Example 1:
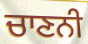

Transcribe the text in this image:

ਚਾਣਨੀ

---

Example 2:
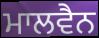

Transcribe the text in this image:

ਮਾਲਵੈਨ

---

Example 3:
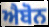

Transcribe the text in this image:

ਐਬੋਨ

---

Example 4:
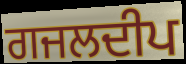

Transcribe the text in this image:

ਗਜਲਦੀਪ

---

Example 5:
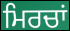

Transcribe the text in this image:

ਮਿਰਚਾਂ